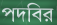
পদবির